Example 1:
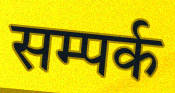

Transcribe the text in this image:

सम्पर्क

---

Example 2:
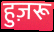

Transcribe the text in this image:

हुज़रू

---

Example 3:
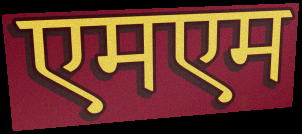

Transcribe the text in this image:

एमएम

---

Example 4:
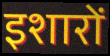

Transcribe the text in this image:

इशारों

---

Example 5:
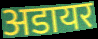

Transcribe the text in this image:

अडायर